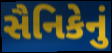
સૈનિકેનું